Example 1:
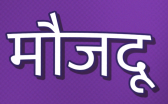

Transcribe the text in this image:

मौजदू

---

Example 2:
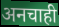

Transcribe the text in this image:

अनचाही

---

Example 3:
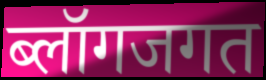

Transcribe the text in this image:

ब्लॉगजगत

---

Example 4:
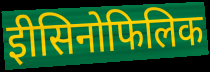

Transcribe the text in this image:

ईोसिनोफिलिक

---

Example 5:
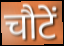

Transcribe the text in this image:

चौटें